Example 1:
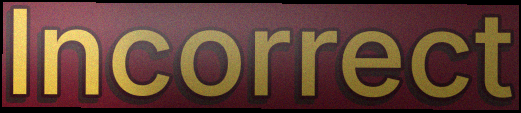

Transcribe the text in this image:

Incorrect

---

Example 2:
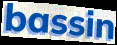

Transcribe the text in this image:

bassin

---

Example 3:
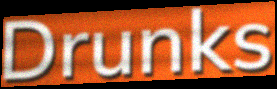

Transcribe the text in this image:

Drunks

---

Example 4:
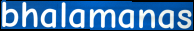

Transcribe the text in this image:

bhalamanas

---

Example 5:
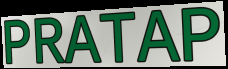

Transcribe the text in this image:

PRATAP